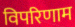
विपरिणाम